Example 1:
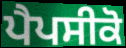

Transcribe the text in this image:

ਪੈਪਸੀਕੋ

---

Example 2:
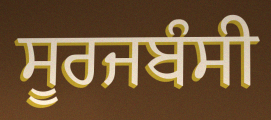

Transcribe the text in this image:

ਸੂਰਜਬੰਸੀ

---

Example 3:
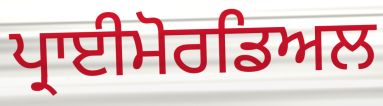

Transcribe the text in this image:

ਪ੍ਰਾਈਮੋਰਡਿਅਲ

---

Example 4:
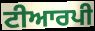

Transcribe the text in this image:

ਟੀਆਰਪੀ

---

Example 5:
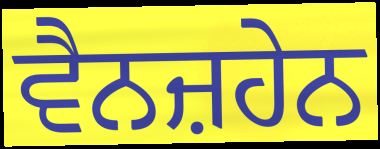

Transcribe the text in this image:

ਵੈਨਜ਼ਹੇਨ